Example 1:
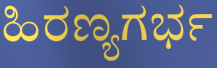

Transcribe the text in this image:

ಹಿರಣ್ಯಗರ್ಭ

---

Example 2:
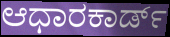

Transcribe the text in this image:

ಆಧಾರಕಾರ್ಡ್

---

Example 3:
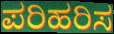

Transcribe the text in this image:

ಪರಿಹರಿಸ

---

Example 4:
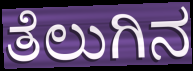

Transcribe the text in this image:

ತೆಲುಗಿನ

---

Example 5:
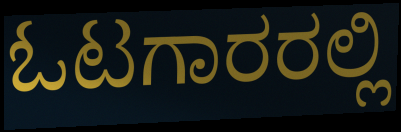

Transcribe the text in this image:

ಓಟಗಾರರಲ್ಲಿ